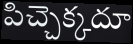
పిచ్చెక్కదూ